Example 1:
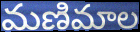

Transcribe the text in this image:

మణిమాల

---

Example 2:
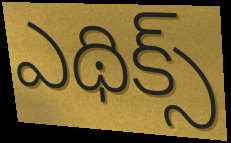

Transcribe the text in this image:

ఎథిక్స్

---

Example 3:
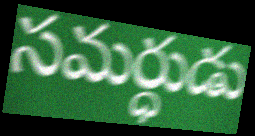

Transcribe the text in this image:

సమర్ధుడు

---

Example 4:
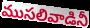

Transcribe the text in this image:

ముసలివాడినీ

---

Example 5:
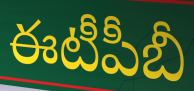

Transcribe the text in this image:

ఈటీపీబీ